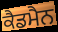
ਕੈਡਮੈਨ